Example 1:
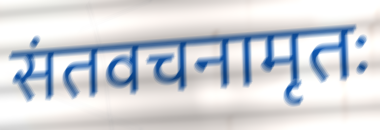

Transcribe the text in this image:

संतवचनामृतः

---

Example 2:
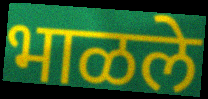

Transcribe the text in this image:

भाळले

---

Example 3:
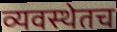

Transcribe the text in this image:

व्यवस्थेतच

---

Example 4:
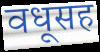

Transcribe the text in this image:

वधूसह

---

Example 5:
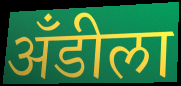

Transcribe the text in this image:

अँडीला